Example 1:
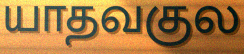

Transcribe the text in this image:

யாதவகுல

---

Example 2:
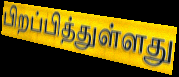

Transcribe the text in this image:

பிறப்பித்துள்ளது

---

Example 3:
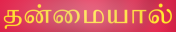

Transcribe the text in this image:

தன்மையால்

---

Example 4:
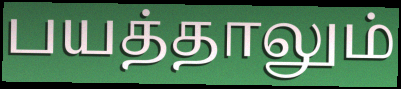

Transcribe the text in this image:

பயத்தாலும்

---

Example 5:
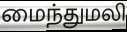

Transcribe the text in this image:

மைந்துமலி